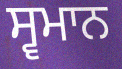
ਸ੍ਵਮਾਨ